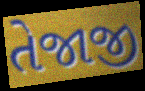
તેજાજી